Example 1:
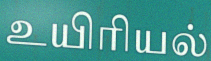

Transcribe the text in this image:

உயிரியல்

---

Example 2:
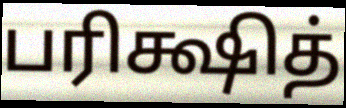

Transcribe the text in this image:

பரிக்ஷித்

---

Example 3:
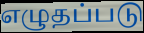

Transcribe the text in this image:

எழுதப்படு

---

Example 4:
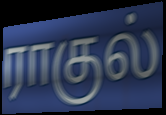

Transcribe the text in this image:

ராகுல்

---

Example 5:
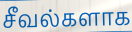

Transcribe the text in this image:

சீவல்களாக